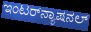
ಇಂಟರ್‌ನ್ಯಾಷನಲ್